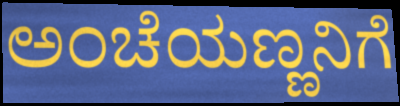
ಅಂಚೆಯಣ್ಣನಿಗೆ